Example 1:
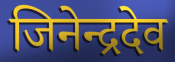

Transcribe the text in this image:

जिनेन्द्रदेव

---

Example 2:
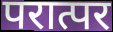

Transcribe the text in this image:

परात्पर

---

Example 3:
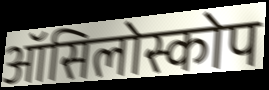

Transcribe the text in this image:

ऑसिलोस्कोप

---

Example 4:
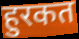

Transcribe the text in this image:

हुरकत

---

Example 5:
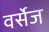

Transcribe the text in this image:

वर्सेज